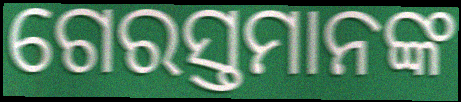
ଗେରସ୍ତମାନଙ୍କ